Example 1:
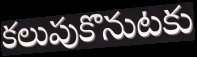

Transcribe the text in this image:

కలుపుకొనుటకు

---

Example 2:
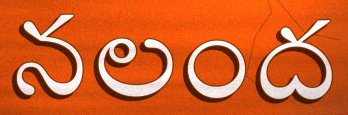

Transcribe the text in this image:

నలంద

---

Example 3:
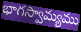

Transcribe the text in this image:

భాగస్వామ్యము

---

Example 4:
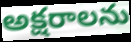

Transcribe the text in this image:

అక్షరాలను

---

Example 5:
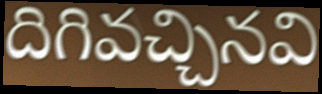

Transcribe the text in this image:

దిగివచ్చినవి